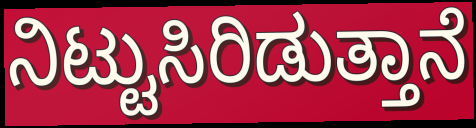
ನಿಟ್ಟುಸಿರಿಡುತ್ತಾನೆ